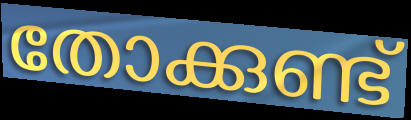
തോക്കുണ്ട്